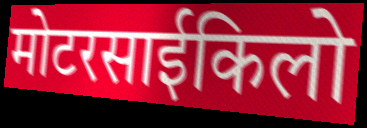
मोटरसाईकिलो